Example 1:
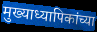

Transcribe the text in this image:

मुख्याध्यापिकांच्या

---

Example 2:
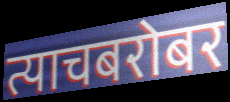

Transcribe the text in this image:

त्याचबरोबर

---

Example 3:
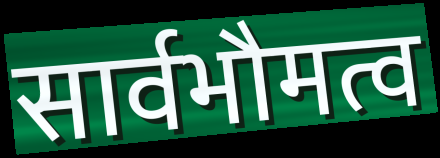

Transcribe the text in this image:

सार्वभौमत्व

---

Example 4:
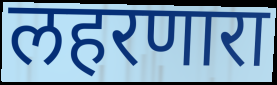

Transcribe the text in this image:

लहरणारा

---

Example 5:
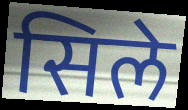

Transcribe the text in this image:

सिले